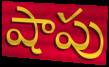
షాపు